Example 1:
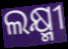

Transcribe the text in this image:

ଲକ୍ଷ୍ମୀ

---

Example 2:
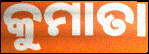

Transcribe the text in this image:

କୁମାତା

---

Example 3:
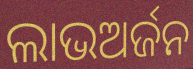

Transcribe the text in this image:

ଲାଭଅର୍ଜନ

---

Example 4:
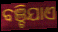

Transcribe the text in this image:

ବଞ୍ଚିଯାଏ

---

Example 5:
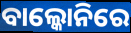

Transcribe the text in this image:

ବାଲ୍କୋନିରେ